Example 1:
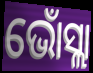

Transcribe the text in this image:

ଭୋଁସ୍ଲା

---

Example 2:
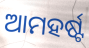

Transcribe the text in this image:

ଆମହର୍ଷ୍ଟ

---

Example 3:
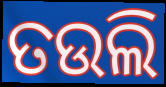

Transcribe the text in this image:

ତଉଲି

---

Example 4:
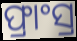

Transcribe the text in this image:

ଫ୍ରାଂସ୍ର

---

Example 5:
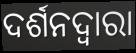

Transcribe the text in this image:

ଦର୍ଶନଦ୍ୱାରା